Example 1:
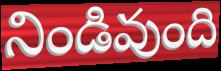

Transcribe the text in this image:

నిండివుంది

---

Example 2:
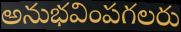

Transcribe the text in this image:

అనుభవింపగలరు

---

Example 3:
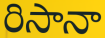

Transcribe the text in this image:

రిసానా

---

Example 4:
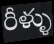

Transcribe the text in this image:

రీళ్ళు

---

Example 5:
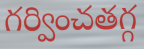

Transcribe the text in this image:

గర్వించతగ్గ